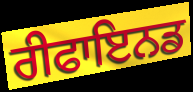
ਰੀਫਾਇਨਡ